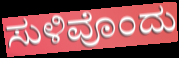
ಸುಳಿವೊಂದು